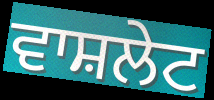
ਵਾਸ਼ਲੇਟ